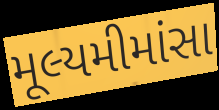
મૂલ્યમીમાંસા